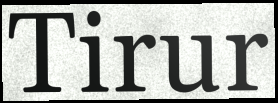
Tirur